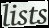
lists